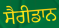
ਸੈਰੀਡਾਨ